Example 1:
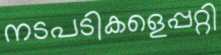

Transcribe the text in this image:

നടപടികളെപ്പറ്റി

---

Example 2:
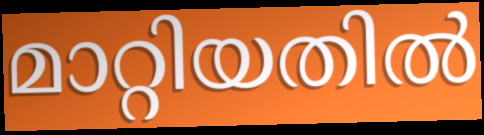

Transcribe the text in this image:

മാറ്റിയതിൽ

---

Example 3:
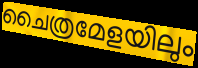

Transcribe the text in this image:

ചൈത്രമേളയിലും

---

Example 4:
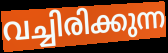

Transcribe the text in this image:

വച്ചിരിക്കുന്ന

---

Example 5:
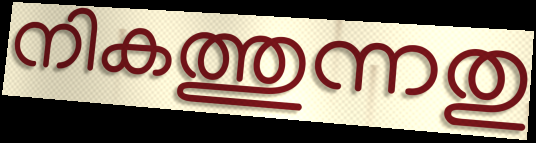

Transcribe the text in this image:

നികത്തുന്നതു